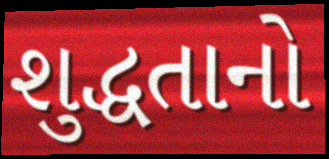
શુદ્ધતાનો